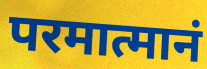
परमात्मानं